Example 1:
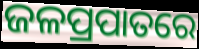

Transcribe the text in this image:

ଜଳପ୍ରପାତରେ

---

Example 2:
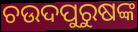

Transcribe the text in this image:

ଚଉଦପୁରୁଷଙ୍କ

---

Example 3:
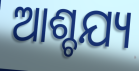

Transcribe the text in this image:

ଆଶ୍ଚଯ୍ୟ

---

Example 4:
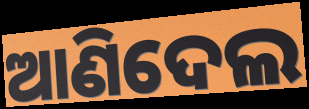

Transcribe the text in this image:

ଆଣିଦେଲ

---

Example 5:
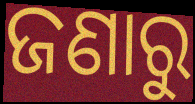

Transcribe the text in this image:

ଜଣାରୁ